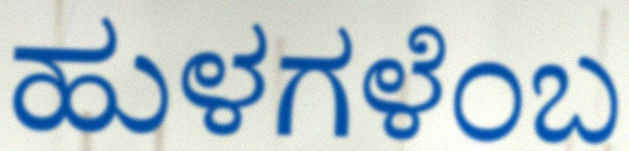
ಹುಳಗಳೆಂಬ